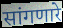
सांगणारे